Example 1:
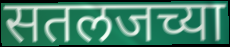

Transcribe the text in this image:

सतलजच्या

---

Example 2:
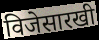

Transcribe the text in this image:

विजेसारखी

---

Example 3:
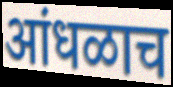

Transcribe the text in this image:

आंधळाच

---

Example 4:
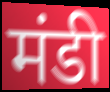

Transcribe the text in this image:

मंडी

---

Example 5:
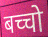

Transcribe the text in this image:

बच्चो